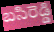
బసిరెడ్డి